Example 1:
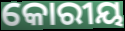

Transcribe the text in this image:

କୋରୀୟ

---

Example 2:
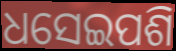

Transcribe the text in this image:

ଧସେଇପଶି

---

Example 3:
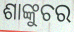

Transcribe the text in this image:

ଶାଙ୍କୁଚର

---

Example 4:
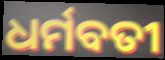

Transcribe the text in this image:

ଧର୍ମବତୀ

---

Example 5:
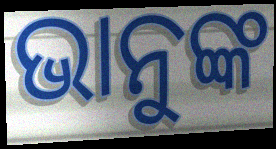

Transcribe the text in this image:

ଭାନୁଙ୍କ